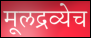
मूलद्रव्येच